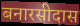
बनारसीदास